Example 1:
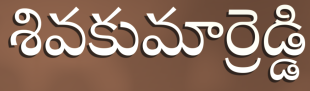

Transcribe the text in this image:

శివకుమార్రెడ్డి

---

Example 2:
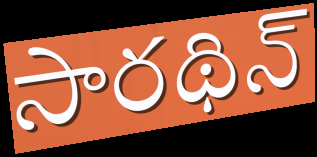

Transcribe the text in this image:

సారథిన్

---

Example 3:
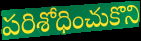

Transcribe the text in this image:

పరిశోధించుకొని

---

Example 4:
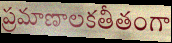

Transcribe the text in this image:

ప్రమాణాలకతీతంగా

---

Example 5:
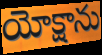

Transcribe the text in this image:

యోక్షాను